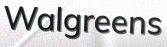
Walgreens